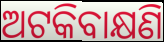
ଅଟକିବାକ୍ଷଣି